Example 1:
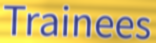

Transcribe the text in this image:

Trainees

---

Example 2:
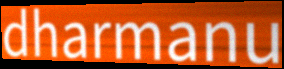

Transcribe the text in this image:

dharmanu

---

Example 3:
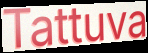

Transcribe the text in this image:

Tattuva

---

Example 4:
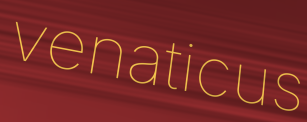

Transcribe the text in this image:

venaticus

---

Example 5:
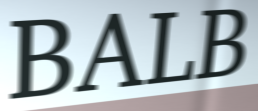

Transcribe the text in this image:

BALB